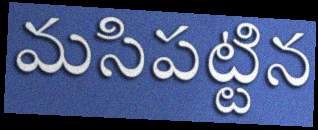
మసిపట్టిన